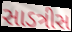
સાડત્રીસ